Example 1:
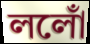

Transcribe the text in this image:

ললোঁ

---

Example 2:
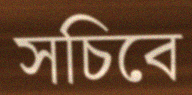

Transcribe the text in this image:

সচিবে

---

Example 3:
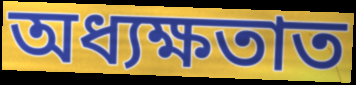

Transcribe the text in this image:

অধ্যক্ষতাত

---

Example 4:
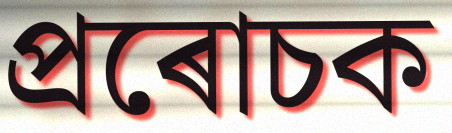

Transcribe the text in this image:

প্ৰৰোচক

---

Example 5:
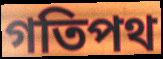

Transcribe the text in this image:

গতিপথ